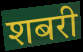
शबरी